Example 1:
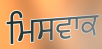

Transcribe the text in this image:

ਮਿਸਵਾਕ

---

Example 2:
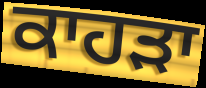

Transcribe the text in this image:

ਕਾਹੜਾ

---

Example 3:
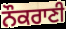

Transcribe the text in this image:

ਨੌਕਰਾਣੀ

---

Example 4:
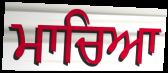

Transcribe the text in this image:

ਮਾਚਿਆ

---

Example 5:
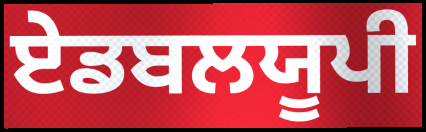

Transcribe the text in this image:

ਏਡਬਲਯੂਪੀ